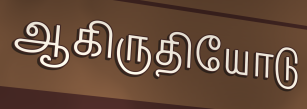
ஆகிருதியோடு